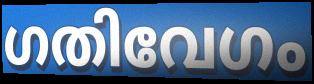
ഗതിവേഗം